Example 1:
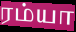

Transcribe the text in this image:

ரம்யா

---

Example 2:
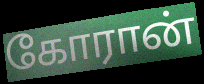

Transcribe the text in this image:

கோரான்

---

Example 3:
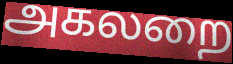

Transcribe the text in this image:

அகலறை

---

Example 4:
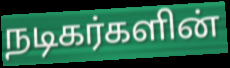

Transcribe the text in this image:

நடிகர்களின்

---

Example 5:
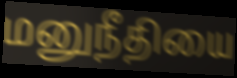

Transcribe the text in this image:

மனுநீதியை